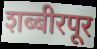
शब्बीरपूर